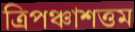
ত্রিপঞ্চাশত্তম